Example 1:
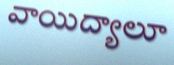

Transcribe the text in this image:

వాయిద్యాలూ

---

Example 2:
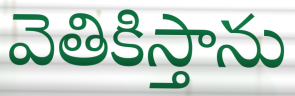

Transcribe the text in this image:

వెతికిస్తాను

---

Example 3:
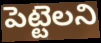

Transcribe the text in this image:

పెట్టెలని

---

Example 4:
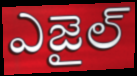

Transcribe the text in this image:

ఎజైల్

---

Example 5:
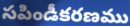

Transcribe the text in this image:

సపిండీకరణము